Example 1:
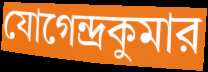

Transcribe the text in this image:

যোগেন্দ্রকুমার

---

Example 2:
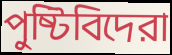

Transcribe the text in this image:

পুষ্টিবিদেরা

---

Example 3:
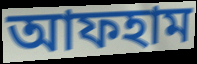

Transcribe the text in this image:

আফহাম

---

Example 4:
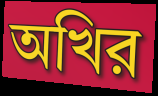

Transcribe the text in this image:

অখির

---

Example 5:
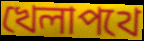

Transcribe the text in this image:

খেলাপথে